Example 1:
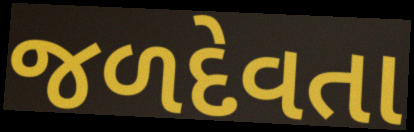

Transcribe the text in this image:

જળદેવતા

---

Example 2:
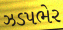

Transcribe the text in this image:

ઝડપભેર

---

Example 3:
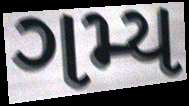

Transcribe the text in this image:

ગમ્ય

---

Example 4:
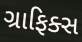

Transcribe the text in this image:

ગ્રાફિક્સ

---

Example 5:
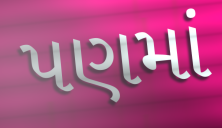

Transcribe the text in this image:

પણમાં